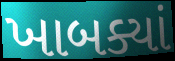
ખાબક્યાં